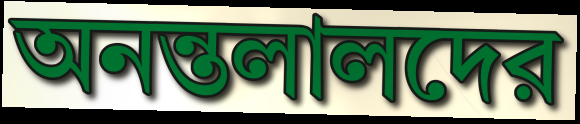
অনন্তলালদের